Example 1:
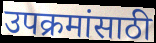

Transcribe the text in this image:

उपक्रमांसाठी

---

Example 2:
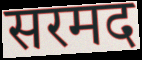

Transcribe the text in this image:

सरमद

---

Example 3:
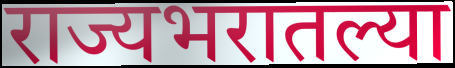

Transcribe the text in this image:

राज्यभरातल्या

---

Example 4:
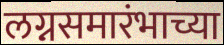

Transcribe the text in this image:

लग्नसमारंभाच्या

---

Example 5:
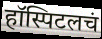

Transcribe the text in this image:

हॉस्पिटलचं